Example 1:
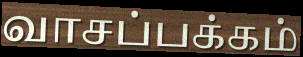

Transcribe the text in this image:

வாசப்பக்கம்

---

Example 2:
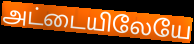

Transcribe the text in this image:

அட்டையிலேயே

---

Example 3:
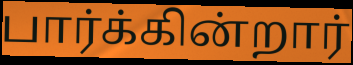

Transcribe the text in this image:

பார்க்கின்றார்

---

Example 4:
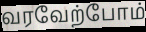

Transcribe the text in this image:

வரவேற்போம்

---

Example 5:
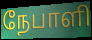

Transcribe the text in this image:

நேபாளி